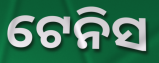
ଟେନିସ